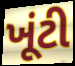
ખૂંટી